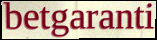
betgaranti